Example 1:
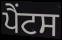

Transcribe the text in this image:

ਪੈਂਟਸ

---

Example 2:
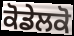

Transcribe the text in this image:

ਕੋਡੇਲਕੋ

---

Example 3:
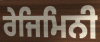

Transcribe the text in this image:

ਰੇਜਿਮਿਨੀ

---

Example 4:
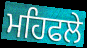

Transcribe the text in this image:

ਮਹਿਫਲੇ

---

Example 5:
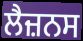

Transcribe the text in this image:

ਲੈਜ਼ਨਸ